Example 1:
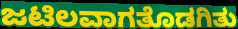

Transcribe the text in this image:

ಜಟಿಲವಾಗತೊಡಗಿತು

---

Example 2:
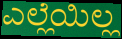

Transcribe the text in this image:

ಎಲ್ಲೆಯಿಲ್ಲ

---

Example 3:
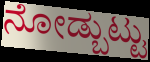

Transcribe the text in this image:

ನೋಡ್ಬುಟ್ಟು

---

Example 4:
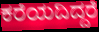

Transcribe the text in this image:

ಕರೆಯದಿದ್ದರೆ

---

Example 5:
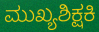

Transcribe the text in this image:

ಮುಖ್ಯಶಿಕ್ಷಕಿ